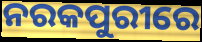
ନରକପୁରୀରେ